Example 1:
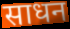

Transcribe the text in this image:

साधन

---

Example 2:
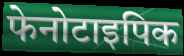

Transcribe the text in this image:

फेनोटाइपिक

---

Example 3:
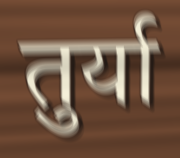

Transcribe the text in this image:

तुर्या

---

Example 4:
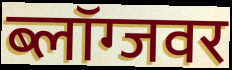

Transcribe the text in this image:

ब्लॉग्जवर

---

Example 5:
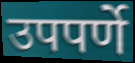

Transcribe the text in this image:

उपपर्णे